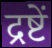
द्रष्टें